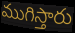
ముగిస్తారు